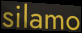
silamo